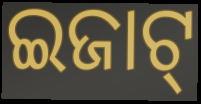
ଇଜାଟ୍